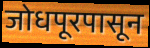
जोधपूरपासून